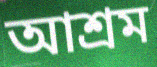
আশ্ৰম